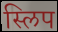
स्लिप